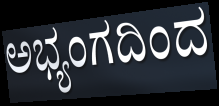
ಅಭ್ಯಂಗದಿಂದ